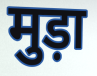
मुड़ा